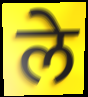
ले